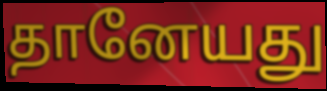
தானேயது